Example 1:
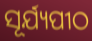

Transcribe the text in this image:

ସୂର୍ଯ୍ୟପୀଠ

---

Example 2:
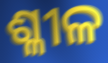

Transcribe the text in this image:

ଶ୍ଳୀଳ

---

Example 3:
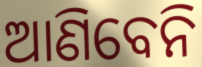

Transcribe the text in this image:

ଆଣିବେନି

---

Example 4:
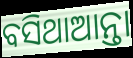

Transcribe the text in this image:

ବସିଥାଆନ୍ତା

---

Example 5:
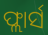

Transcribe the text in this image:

ଫ୍ଲାର୍ସ